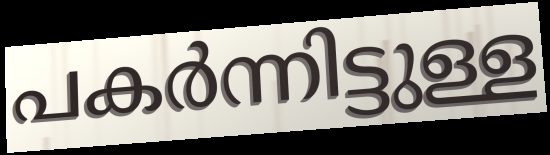
പകർന്നിട്ടുള്ള